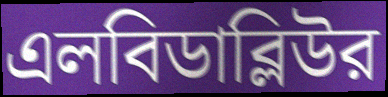
এলবিডাব্লিউর